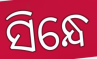
ସିନ୍ଧେ